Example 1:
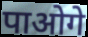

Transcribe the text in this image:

पाओगे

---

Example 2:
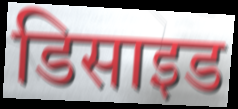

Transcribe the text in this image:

डिसाइड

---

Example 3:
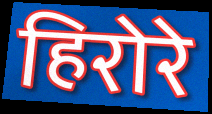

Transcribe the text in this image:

हिरोरे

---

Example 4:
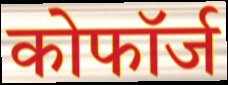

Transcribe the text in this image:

कोफॉर्ज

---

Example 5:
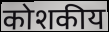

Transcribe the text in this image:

कोशकीय